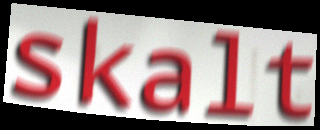
skalt